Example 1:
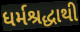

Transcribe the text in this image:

ધર્મશ્રદ્ધાથી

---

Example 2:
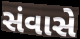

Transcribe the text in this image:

સંવાસે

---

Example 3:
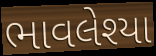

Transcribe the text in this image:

ભાવલેશ્યા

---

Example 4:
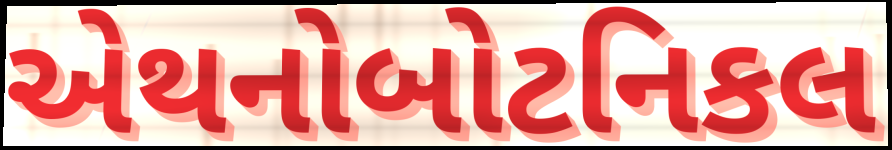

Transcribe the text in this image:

એથનોબોટનિકલ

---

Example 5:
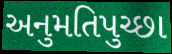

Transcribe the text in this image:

અનુમતિપુચ્છા